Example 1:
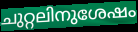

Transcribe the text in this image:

ചുറ്റലിനുശേഷം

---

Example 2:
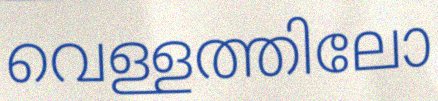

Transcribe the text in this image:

വെള്ളത്തിലോ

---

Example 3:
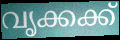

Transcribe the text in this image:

വൃക്കക്ക്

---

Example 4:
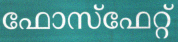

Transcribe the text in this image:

ഫോസ്ഫേറ്റ്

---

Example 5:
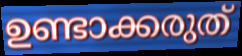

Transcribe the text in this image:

ഉണ്ടാക്കരുത്